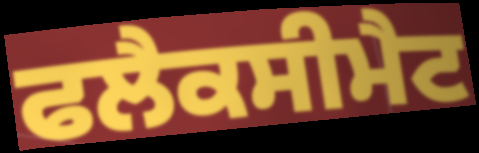
ਫਲੈਕਸੀਮੈਟ